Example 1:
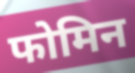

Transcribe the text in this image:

फोमिन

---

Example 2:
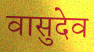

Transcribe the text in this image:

वासुदेव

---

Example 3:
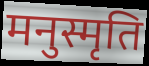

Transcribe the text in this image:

मनुस्मृति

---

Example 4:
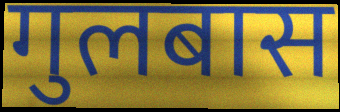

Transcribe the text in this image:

गुलबास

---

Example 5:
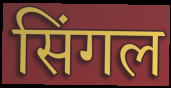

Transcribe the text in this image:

सिंगल